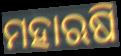
ମହାଋଷି